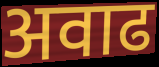
अवाढ